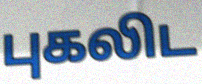
புகலிட